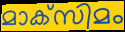
മാക്‌സിമം